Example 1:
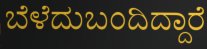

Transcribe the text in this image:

ಬೆಳೆದುಬಂದಿದ್ದಾರೆ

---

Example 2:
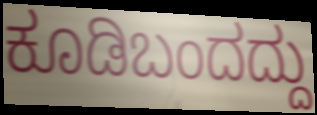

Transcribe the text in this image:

ಕೂಡಿಬಂದದ್ದು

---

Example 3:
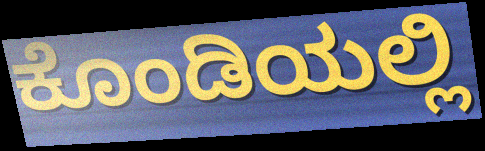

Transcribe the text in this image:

ಕೊಂಡಿಯಲ್ಲಿ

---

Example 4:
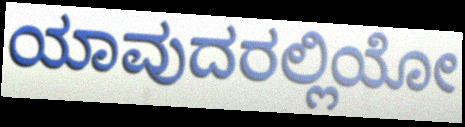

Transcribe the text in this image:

ಯಾವುದರಲ್ಲಿಯೋ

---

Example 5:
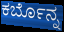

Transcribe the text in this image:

ಕರ್ಬೊನ್ನ